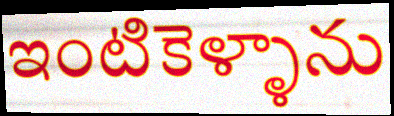
ఇంటికెళ్ళాను